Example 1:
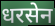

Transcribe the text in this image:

धरसेन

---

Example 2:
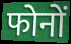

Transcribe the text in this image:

फोनों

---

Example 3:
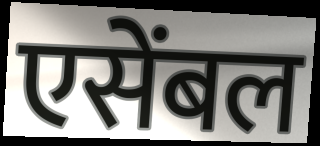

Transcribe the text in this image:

एसेंबल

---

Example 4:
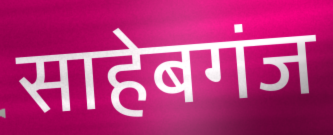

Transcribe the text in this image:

साहेबगंज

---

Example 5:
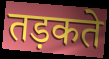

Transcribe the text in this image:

तड़कते